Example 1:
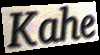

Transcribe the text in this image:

Kahe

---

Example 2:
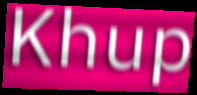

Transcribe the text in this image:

Khup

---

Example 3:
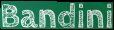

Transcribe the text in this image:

Bandini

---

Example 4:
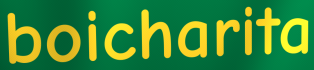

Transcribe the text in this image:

boicharita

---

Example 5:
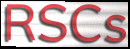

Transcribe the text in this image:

RSCs